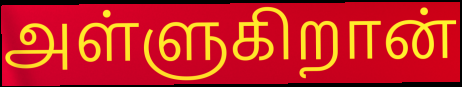
அள்ளுகிறான்